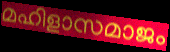
മഹിളാസമാജം